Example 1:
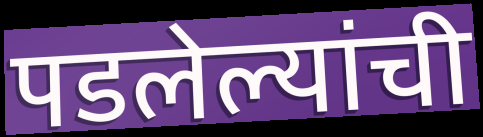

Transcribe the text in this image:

पडलेल्यांची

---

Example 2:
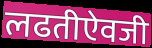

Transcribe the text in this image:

लढतीऐवजी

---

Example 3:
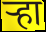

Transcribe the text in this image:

ऱ्हा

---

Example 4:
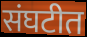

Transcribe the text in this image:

संघटीत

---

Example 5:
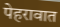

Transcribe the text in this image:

पेहरावात